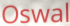
Oswal